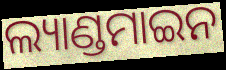
ଲ୍ୟାଣ୍ଡମାଇନ